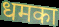
धमका